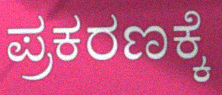
ಪ್ರಕರಣಕ್ಕೆ